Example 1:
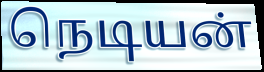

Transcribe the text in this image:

நெடியன்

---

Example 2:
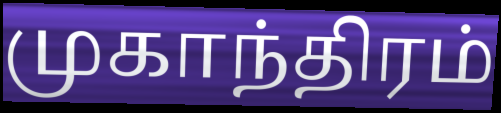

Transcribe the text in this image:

முகாந்திரம்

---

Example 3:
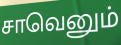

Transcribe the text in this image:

சாவெனும்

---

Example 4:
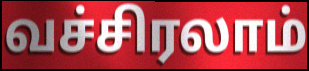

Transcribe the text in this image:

வச்சிரலாம்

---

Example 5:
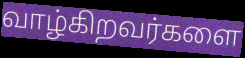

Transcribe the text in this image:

வாழ்கிறவர்களை